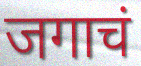
जगाचं